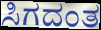
ಸಿಗದಂತ